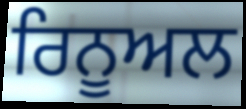
ਰਿਨੂਅਲ